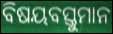
ବିଷୟବସ୍ତୁମାନ